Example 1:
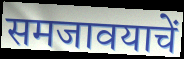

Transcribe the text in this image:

समजावयाचें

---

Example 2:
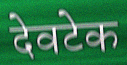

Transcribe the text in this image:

देवटेक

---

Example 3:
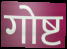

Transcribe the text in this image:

गोष्ट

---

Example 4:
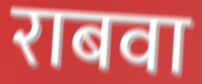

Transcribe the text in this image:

राबवा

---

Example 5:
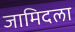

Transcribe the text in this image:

जामिदला